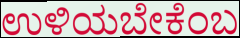
ಉಳಿಯಬೇಕೆಂಬ